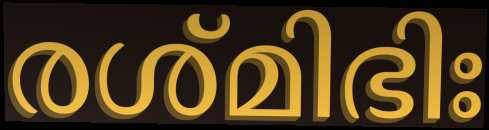
രശ്മിഭിഃ